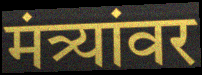
मंत्र्यांवर